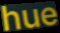
hue